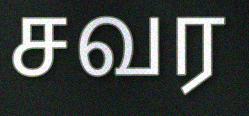
சவர